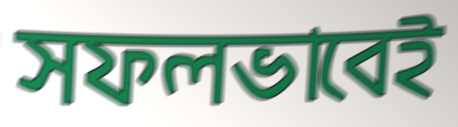
সফলভাবেই